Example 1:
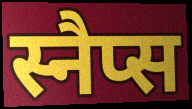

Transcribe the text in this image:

स्नैप्स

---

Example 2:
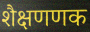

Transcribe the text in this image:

शैक्षणणक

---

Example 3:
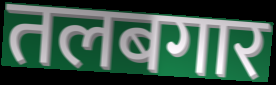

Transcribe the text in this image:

तलबगार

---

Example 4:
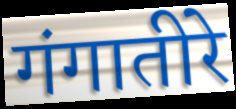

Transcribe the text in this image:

गंगातीरे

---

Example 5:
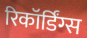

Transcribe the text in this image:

रिकॉर्डिंग्स